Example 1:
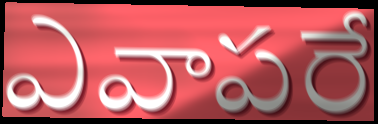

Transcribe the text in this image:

ఎవాపరే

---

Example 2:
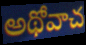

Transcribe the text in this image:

అథోవాచ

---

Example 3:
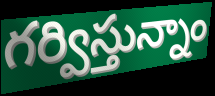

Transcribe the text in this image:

గర్విస్తున్నాం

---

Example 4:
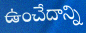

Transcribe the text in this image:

ఉంచేదాన్ని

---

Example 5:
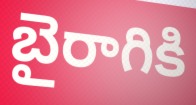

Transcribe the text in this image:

బైరాగికి